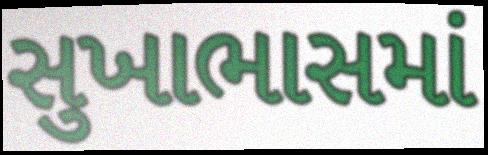
સુખાભાસમાં